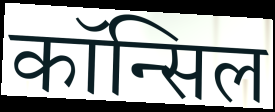
कॉन्सिल